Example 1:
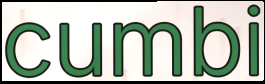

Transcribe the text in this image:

cumbi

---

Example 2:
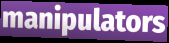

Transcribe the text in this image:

manipulators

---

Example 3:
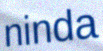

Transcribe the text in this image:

ninda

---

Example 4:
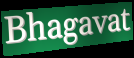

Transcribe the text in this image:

Bhagavat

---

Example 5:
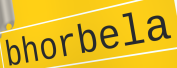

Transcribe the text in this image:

bhorbela